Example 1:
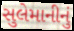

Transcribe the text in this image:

સુલેમાનીનું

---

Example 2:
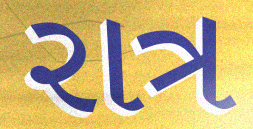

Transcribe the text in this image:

રાત્ર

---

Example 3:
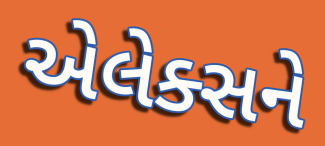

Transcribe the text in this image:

એલેક્સને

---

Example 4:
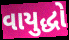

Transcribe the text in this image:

વાયુદ્ધો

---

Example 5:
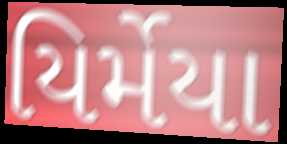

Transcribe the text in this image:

યિર્મેયા